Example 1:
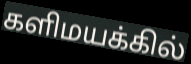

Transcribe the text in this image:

களிமயக்கில்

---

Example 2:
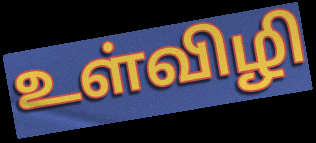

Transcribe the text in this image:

உள்விழி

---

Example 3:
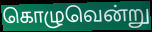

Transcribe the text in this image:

கொழுவென்று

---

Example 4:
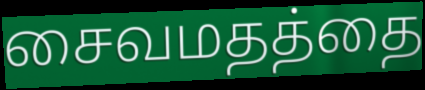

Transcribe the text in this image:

சைவமதத்தை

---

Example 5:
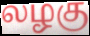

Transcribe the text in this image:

லழகு